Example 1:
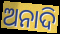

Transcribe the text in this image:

ଅନାଦି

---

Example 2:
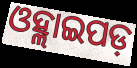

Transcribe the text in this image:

ଓହ୍ଲାଇପଡ଼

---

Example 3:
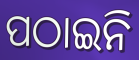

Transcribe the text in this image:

ପଠାଇନି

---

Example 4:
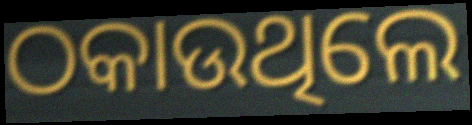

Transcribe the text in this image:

ଠକାଉଥିଲେ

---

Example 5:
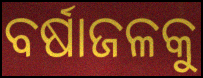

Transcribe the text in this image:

ବର୍ଷାଜଳକୁ